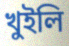
খুইলি